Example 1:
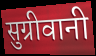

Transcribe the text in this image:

सुग्रीवानी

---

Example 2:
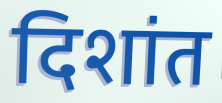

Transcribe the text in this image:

दिशांत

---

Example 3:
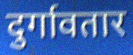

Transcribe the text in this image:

दुर्गावतार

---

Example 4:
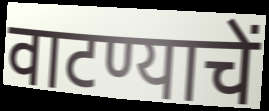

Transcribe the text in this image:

वाटण्याचें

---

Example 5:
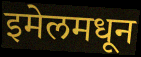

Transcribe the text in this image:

इमेलमधून